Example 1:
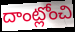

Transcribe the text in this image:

దాంట్లోంచి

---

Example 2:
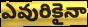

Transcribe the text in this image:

ఎవురికైనా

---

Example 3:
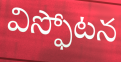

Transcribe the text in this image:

విస్ఫోటన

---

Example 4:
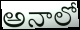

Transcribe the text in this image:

అనాలో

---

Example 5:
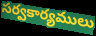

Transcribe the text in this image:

సర్వకార్యములు